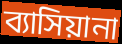
ব্যাসিয়ানা